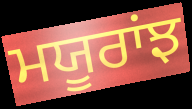
ਮਯੂਰਾਂਝ